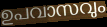
ഉപവാസവും